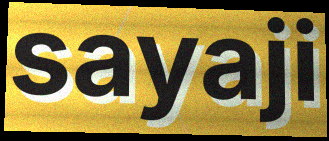
sayaji